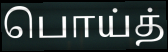
பொய்த்